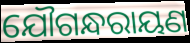
ଯୌଗନ୍ଧରାୟଣ